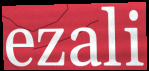
ezali